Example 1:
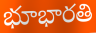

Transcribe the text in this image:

భూభారతి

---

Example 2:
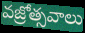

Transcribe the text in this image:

వజ్రోత్సవాలు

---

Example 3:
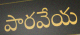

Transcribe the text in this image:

పారవేయ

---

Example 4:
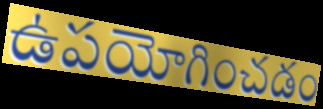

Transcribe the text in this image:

ఉపయోగించడం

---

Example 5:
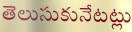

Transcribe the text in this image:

తెలుసుకునేటట్లు